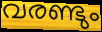
വരണ്ടും